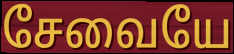
சேவையே